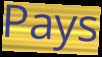
Pays